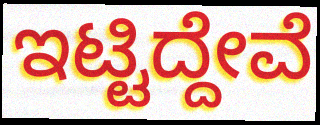
ಇಟ್ಟಿದ್ದೇವೆ